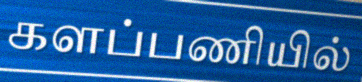
களப்பணியில்